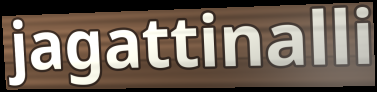
jagattinalli